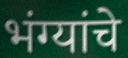
भंग्यांचे